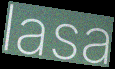
lasa